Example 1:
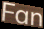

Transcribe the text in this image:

Fan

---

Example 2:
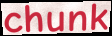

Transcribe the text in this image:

chunk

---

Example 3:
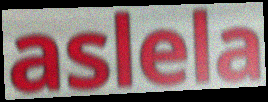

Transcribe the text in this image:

aslela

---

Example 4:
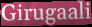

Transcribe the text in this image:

Girugaali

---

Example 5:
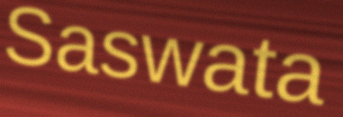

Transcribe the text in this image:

Saswata